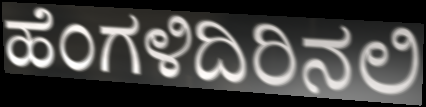
ಹೆಂಗಳಿದಿರಿನಲಿ